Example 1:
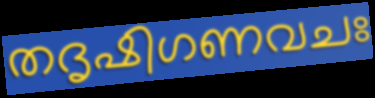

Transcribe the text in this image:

തദൃഷിഗണവചഃ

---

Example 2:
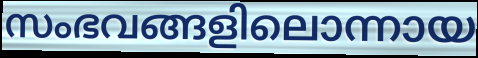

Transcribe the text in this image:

സംഭവങ്ങളിലൊന്നായ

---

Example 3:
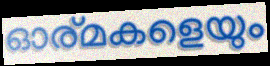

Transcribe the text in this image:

ഓര്മകളെയും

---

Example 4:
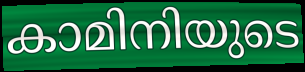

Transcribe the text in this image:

കാമിനിയുടെ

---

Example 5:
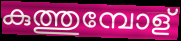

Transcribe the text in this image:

കുത്തുമ്പോള്